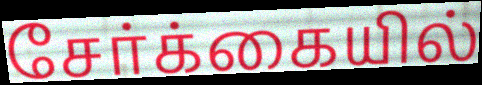
சேர்க்கையில்